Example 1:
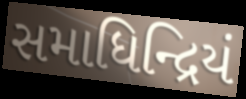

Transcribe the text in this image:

સમાધિન્દ્રિયં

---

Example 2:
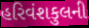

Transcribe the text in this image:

હરિવંશકુલની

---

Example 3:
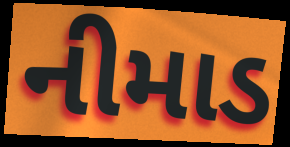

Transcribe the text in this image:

નીમાડ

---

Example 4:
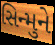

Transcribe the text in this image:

સિન્મુને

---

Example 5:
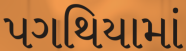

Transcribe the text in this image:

પગથિયામાં